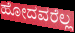
ಹೋದವರೆಲ್ಲ